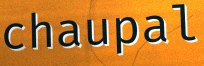
chaupal